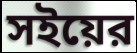
সইয়ের